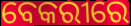
ବେକରୀରେ